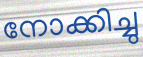
നോക്കിച്ചു